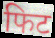
फिट